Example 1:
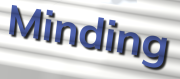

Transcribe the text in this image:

Minding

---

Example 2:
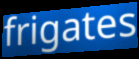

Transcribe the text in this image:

frigates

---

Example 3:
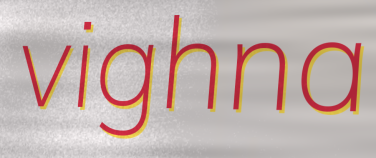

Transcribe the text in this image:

vighna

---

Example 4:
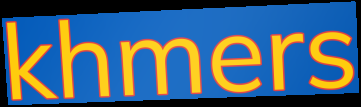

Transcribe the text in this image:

khmers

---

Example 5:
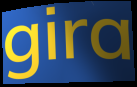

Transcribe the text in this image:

gira